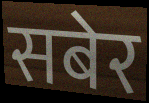
सबेर